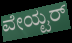
ವೇಯ್ಟರ್